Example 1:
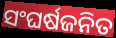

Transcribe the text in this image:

ସଂଘର୍ଷଜନିତ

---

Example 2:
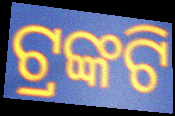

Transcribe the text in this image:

ଟ୍ରଙ୍କଟି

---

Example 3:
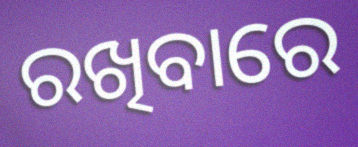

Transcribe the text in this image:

ରଖିବାରେ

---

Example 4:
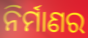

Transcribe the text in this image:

ନିର୍ମାଣର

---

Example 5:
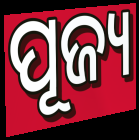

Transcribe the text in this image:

ପୂଜ୍ୟ